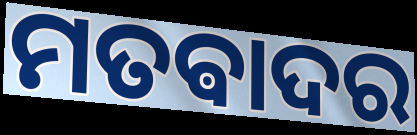
ମତଵାଦର